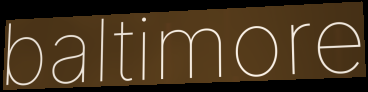
baltimore